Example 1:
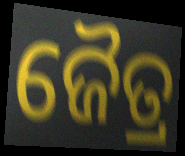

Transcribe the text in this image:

ଜୈତ୍ର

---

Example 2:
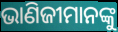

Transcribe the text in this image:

ଭାଣିଜୀମାନଙ୍କୁ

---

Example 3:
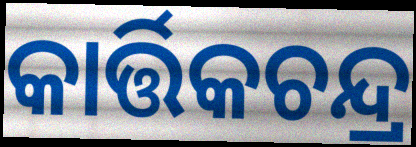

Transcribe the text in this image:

କାର୍ତ୍ତିକଚନ୍ଦ୍ର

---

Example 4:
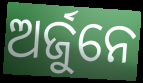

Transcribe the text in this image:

ଅର୍ଜୁନେ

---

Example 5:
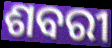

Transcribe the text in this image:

ଶବରୀ